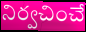
నిర్వచించే